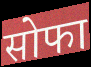
सोफा